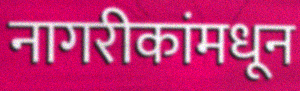
नागरीकांमधून